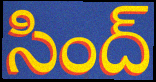
సింద్